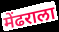
मेंढराला